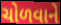
ચોળવાને